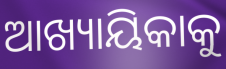
ଆଖ୍ୟାୟିକାକୁ